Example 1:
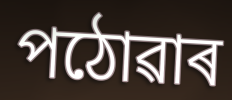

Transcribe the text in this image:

পঠোৱাৰ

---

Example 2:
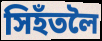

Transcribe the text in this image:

সিহঁতলৈ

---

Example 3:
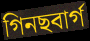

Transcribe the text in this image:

গিনছবাৰ্গ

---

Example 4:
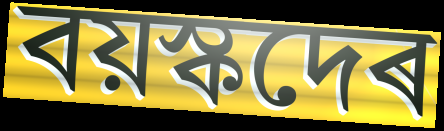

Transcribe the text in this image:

বয়স্কদেৰ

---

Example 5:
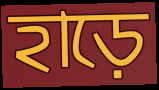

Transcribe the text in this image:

হাড়ে